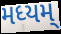
મધ્યમ્